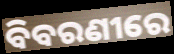
ବିବରଣୀରେ